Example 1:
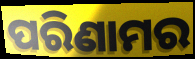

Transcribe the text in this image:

ପରିଣାମର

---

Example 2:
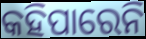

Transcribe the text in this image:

କହିପାରେନି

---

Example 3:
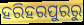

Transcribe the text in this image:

ହରିହରପୁରରୁ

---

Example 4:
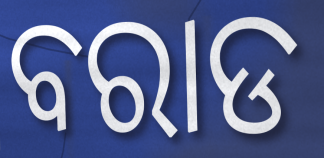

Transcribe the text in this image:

ବରାଡ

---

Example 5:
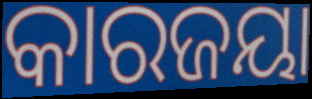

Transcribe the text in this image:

କାରଜୟା